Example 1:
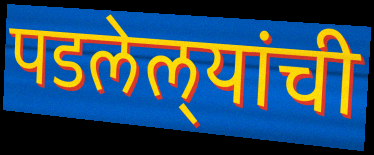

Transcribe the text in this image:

पडलेल्यांची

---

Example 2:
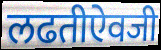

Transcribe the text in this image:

लढतीऐवजी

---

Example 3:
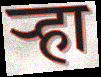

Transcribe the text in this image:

ऱ्हा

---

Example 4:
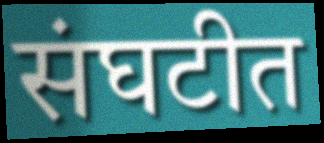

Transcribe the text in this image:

संघटीत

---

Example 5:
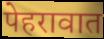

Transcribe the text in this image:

पेहरावात